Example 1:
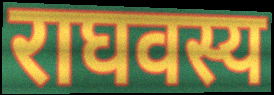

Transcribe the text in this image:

राघवस्य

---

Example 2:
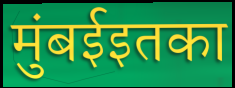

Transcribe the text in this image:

मुंबईइतका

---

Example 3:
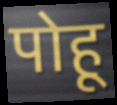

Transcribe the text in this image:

पोहू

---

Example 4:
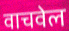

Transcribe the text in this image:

वाचवेल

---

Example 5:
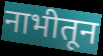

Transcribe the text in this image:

नाभीतून